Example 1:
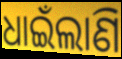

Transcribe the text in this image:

ଧାଇଁଲାଣି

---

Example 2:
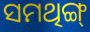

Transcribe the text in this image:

ସମଥିଙ୍ଗ୍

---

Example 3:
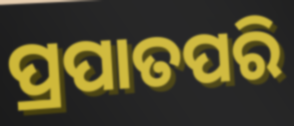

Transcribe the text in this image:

ପ୍ରପାତପରି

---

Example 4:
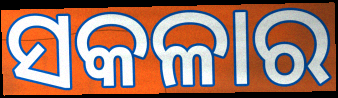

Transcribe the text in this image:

ସକଳାର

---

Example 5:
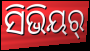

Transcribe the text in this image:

ସିଭିୟର୍